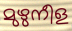
മുഴുനീള